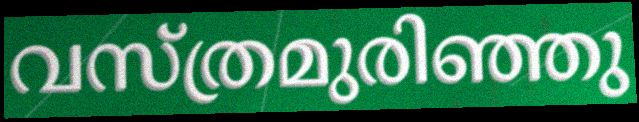
വസ്ത്രമുരിഞ്ഞു